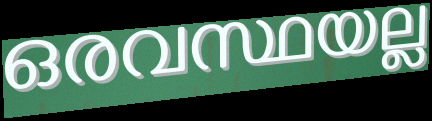
ഒരവസ്ഥയല്ല